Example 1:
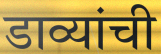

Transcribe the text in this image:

डाव्यांची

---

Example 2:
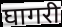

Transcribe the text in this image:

घागरी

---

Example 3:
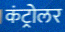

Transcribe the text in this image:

कंट्रोलर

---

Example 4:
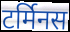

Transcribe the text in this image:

टर्मिनस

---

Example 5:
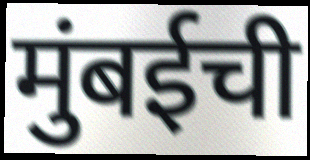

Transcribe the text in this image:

मुंबईची